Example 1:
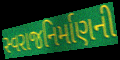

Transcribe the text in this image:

સ્વરાજનિર્માણની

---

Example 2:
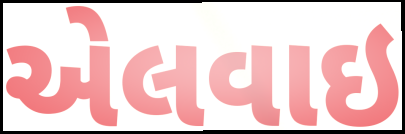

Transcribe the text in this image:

એલવાઇ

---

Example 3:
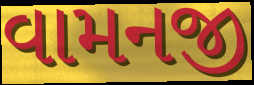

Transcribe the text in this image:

વામનજી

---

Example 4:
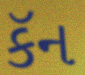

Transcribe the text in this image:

કૅન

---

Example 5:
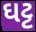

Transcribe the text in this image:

ઘટ્ટ